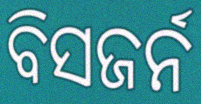
ବିସଜର୍ନ